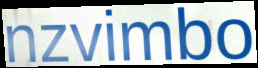
nzvimbo